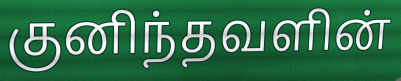
குனிந்தவளின்